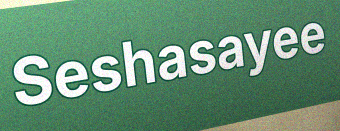
Seshasayee